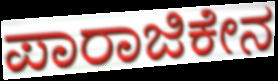
ಪಾರಾಜಿಕೇನ